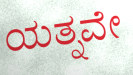
ಯತ್ನವೇ